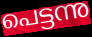
പെട്ടന്നു